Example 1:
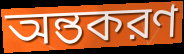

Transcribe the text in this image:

অন্তকরণ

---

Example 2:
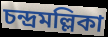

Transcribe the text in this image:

চন্দ্রমল্লিকা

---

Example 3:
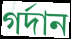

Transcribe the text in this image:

গর্দান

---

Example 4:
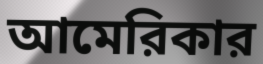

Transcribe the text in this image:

আমেরিকার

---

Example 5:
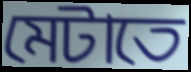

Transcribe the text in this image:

মেটাতে